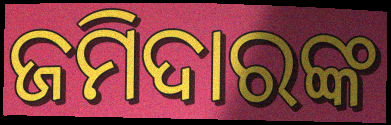
ଜମିଦାରଙ୍କ